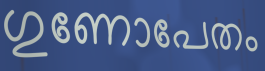
ഗുണോപേതം